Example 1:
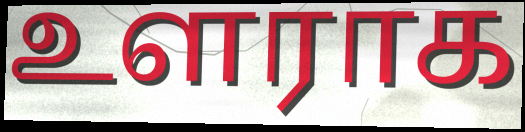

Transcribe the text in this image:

உளராக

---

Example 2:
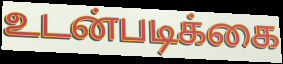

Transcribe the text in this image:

உடன்படிக்கை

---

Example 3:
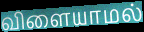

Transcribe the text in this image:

விளையாமல்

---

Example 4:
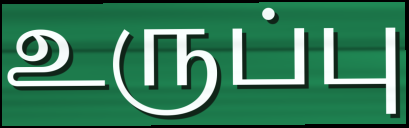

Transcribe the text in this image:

உருப்பு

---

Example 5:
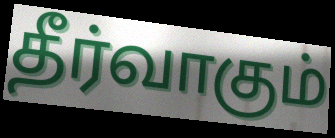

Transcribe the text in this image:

தீர்வாகும்